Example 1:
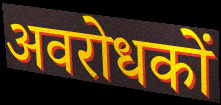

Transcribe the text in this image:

अवरोधकों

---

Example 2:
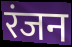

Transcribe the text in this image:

रंजन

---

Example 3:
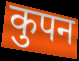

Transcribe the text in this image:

कुपन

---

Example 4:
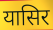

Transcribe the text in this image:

यासिर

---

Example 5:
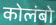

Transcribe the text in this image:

कोलंबो